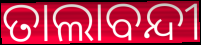
ତାଲାବନ୍ଦୀ